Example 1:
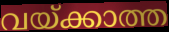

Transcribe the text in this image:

വയ്ക്കാത്ത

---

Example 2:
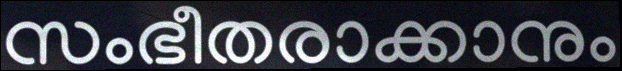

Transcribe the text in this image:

സംഭീതരാക്കാനും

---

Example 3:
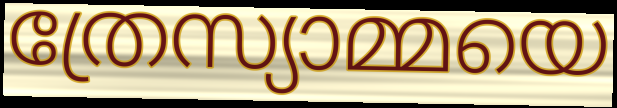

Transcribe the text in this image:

ത്രേസ്യാമ്മയെ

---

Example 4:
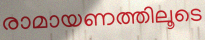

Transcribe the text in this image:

രാമായണത്തിലൂടെ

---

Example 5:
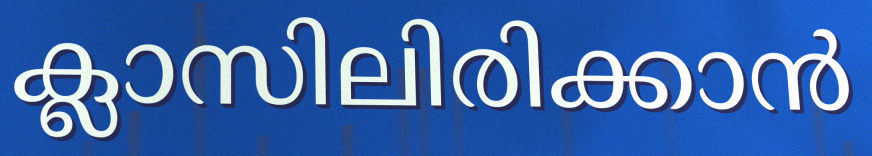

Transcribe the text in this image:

ക്ലാസിലിരിക്കാൻ